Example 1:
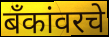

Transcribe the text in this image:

बँकांवरचे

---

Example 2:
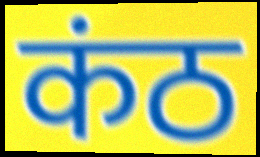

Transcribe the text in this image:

कंठ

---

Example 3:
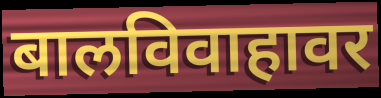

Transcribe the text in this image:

बालविवाहावर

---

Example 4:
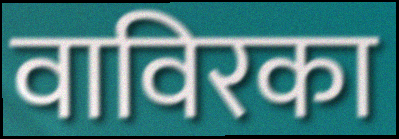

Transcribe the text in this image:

वाविरका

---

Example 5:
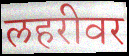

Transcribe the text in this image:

लहरीवर